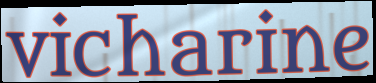
vicharine